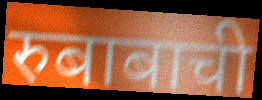
रुबाबाची